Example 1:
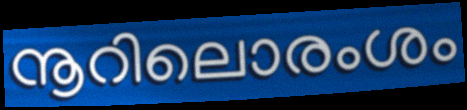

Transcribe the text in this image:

നൂറിലൊരംശം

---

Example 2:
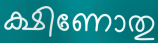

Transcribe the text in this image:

ക്ഷിണോതു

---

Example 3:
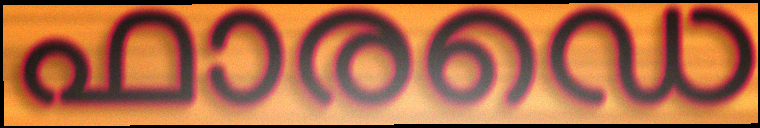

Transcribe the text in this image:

ഫാരഡെ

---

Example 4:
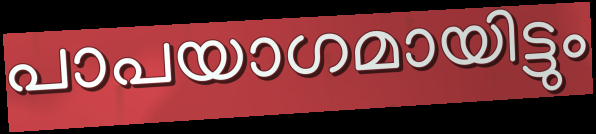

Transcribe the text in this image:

പാപയാഗമായിട്ടും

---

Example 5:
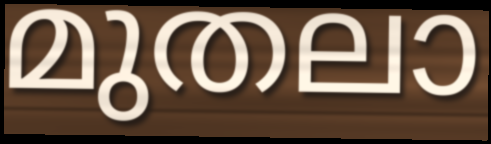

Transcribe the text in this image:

മുതലാ